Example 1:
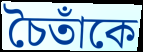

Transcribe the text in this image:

চৈতাঁকে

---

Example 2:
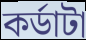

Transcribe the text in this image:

কর্ডাটা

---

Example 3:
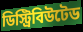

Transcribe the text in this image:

ডিস্ট্রিবিউটেড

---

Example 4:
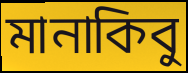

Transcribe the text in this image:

মানাকিবু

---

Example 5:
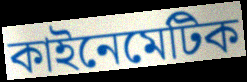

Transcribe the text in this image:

কাইনেমেটিক